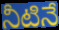
నీటినే